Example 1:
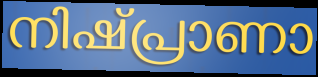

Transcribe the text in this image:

നിഷ്പ്രാണാ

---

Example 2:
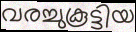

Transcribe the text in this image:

വരച്ചുകൂട്ടിയ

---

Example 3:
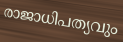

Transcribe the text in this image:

രാജാധിപത്യവും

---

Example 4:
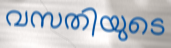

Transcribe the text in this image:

വസതിയുടെ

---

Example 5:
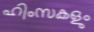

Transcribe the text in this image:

ഹിംസകളും